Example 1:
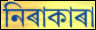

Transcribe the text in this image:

নিৰাকাৰা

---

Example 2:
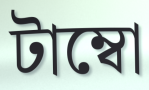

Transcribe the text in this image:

টাম্বো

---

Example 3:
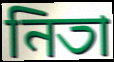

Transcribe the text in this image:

নিতা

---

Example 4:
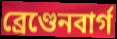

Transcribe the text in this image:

ব্ৰেণ্ডেনবাৰ্গ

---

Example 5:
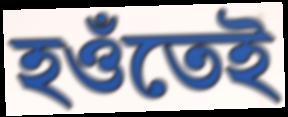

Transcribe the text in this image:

হওঁতেই